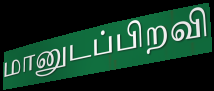
மானுடப்பிறவி